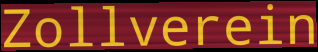
Zollverein